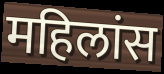
महिलांस